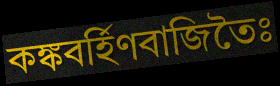
কঙ্কবর্হিণবাজিতৈঃ